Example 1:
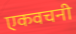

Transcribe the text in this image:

एकवचनी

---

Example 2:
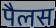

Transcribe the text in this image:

पैलस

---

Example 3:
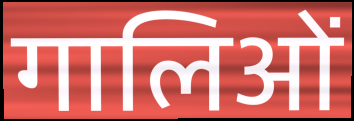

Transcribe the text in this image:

गालिओं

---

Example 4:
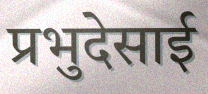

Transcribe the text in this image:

प्रभुदेसाई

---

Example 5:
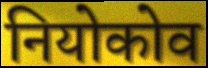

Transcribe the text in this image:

नियोकोव